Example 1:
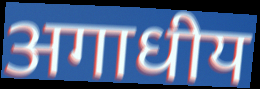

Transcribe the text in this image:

अगाधीय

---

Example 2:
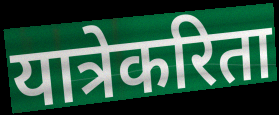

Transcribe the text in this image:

यात्रेकरिता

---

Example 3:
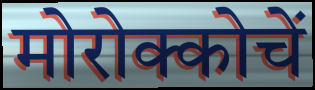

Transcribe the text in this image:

मोरोक्कोचें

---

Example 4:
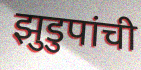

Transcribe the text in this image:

झुडुपांची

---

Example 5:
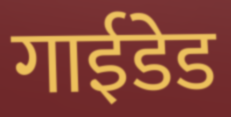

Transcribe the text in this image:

गाईडेड